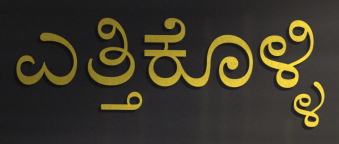
ಎತ್ತಿಕೊಳ್ಳಿ